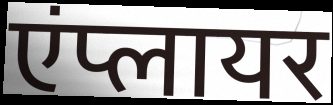
एंप्लायर